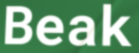
Beak